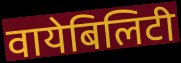
वायेबिलिटी